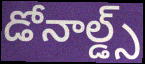
డోనాల్డ్స్